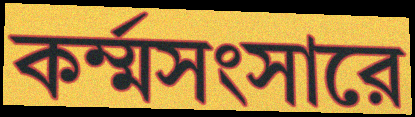
কর্ম্মসংসারে